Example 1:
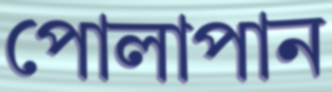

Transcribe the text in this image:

পোলাপান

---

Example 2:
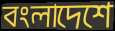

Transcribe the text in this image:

বংলাদেশে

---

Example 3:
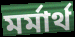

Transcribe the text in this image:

মর্মার্থ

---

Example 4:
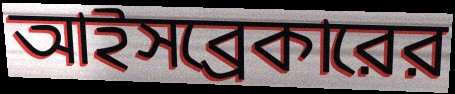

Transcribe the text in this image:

আইসব্রেকারের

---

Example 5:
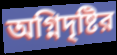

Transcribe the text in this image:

অগ্নিদৃষ্টির